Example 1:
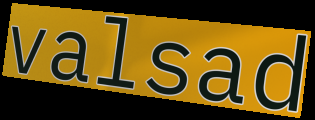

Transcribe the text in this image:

valsad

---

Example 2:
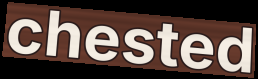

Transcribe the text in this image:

chested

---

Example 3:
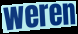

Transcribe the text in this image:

weren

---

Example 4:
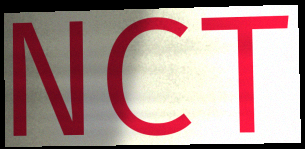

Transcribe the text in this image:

NCT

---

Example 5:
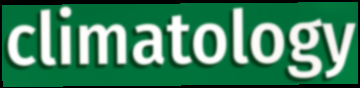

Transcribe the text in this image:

climatology